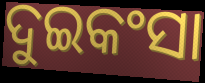
ଦୁଇକଂସା